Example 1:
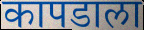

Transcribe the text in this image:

कापडाला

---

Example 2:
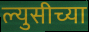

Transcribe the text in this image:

ल्युसीच्या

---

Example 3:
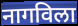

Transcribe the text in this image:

नागविला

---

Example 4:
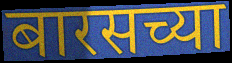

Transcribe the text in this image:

बारसच्या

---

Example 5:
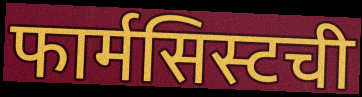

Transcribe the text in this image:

फार्मसिस्टची